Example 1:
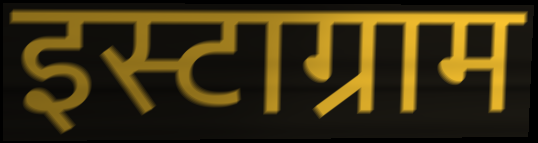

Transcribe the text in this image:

इस्टाग्राम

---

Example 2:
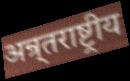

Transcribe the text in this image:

अन्र्तराष्ट्रीय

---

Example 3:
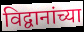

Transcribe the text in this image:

विद्वानांच्या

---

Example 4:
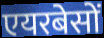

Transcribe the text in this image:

एयरबेसों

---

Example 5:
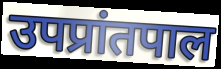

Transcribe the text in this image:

उपप्रांतपाल